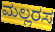
ಮಲ್ಲರಸ